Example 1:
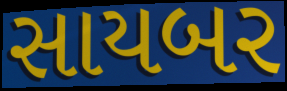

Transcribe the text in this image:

સાયબર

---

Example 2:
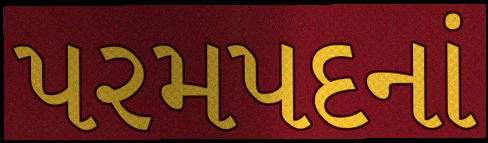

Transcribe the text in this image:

પરમપદનાં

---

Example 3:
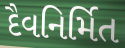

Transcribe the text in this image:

દૈવનિર્મિત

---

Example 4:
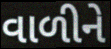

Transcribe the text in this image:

વાળીને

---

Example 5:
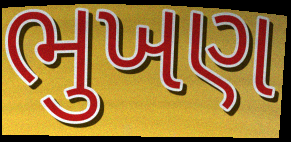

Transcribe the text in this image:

ભુખણ